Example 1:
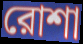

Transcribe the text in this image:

রোশা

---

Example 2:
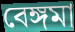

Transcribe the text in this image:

বেঙ্গমা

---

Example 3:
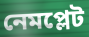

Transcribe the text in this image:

নেমপ্লেট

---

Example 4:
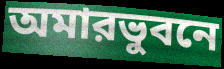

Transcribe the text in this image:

অমারভুবনে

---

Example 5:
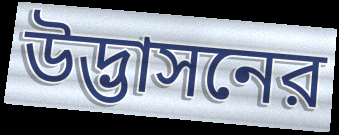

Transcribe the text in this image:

উদ্ভাসনের